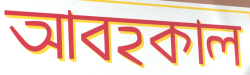
আবহকাল